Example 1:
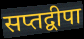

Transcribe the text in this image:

सप्तद्वीपा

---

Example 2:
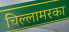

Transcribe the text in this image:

चिल्लामरका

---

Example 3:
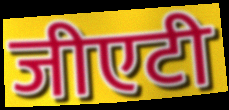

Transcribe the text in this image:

जीएटी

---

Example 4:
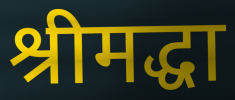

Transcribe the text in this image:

श्रीमद्धा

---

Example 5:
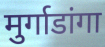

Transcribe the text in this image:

मुर्गाडांगा